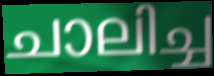
ചാലിച്ച